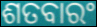
ଶତବାରଂ